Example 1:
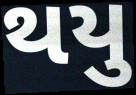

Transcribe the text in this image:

થયુ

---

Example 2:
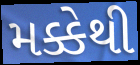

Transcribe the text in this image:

મક્કેથી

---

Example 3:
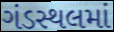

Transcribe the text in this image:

ગંડસ્થલમાં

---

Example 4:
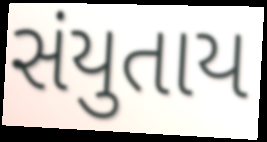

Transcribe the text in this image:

સંયુતાય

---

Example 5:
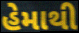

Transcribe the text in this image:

હેમાથી